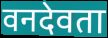
वनदेवता